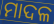
ମାଦଳ